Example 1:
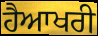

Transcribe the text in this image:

ਹੈਆਖਰੀ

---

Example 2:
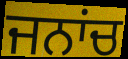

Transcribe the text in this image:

ਜਨਾਂਚ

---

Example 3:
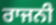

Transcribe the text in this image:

ਰਾਜਨੀ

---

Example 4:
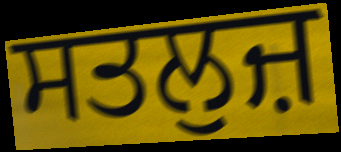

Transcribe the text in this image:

ਸਤਲੁਜ਼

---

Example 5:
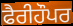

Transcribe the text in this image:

ਫੈਰੀਹੌਪਰ